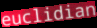
euclidian